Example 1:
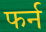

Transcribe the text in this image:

फर्न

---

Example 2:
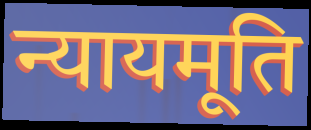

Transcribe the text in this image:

न्यायमूति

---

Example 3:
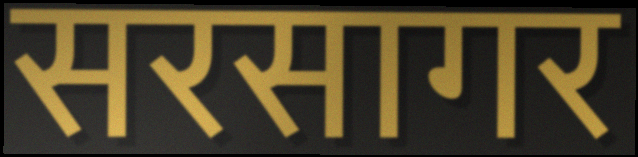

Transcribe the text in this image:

सरसागर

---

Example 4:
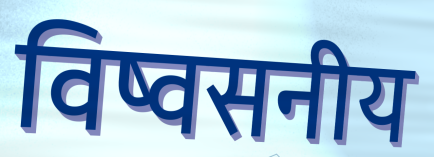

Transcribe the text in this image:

विष्वसनीय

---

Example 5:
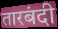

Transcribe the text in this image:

तारबंदी